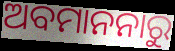
ଅବମାନନାରୁ